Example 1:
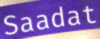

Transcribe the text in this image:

Saadat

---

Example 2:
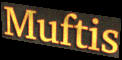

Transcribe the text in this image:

Muftis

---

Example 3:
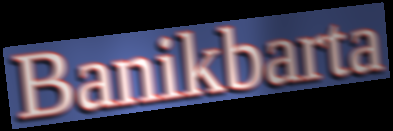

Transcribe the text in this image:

Banikbarta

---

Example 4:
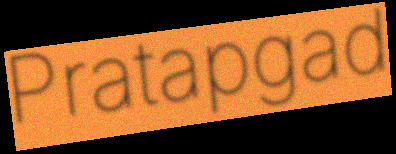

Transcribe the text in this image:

Pratapgad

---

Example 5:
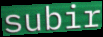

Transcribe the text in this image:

subir